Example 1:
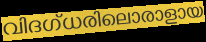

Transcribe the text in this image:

വിദഗ്ധരിലൊരാളായ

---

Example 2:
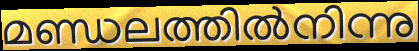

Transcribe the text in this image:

മണ്ഡലത്തിൽനിന്നു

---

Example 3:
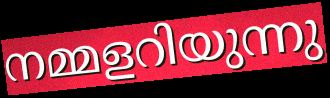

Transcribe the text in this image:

നമ്മളറിയുന്നു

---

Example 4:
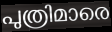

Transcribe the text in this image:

പുത്രിമാരെ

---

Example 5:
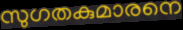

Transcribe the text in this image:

സുഗതകുമാരനെ